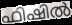
ഫിഷിൽ